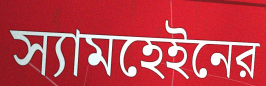
স্যামহেইনের